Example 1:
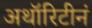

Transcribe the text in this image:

अथॉरिटीनं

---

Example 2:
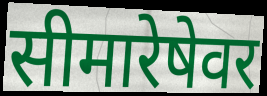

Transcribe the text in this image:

सीमारेषेवर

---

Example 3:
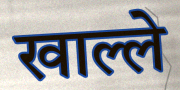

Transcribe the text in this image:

खाल्ले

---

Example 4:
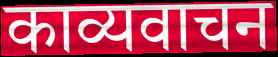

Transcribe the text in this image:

काव्यवाचन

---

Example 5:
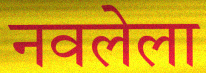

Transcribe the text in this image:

नवलेला